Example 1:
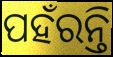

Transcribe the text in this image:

ପହଁରନ୍ତି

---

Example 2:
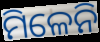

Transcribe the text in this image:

ମିଳେନି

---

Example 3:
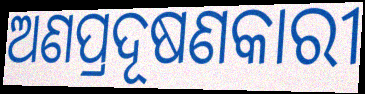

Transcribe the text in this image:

ଅଣପ୍ରଦୂଷଣକାରୀ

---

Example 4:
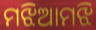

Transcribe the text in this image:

ମଝିଆମଝି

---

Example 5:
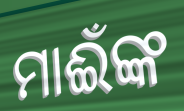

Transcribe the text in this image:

ମାଈଁଙ୍କ